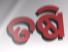
ତଷି